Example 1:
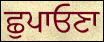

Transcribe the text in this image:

ਛੁਪਾਓਣਾ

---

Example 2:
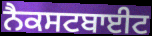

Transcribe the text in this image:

ਨੈਕਸਟਬਾਈਟ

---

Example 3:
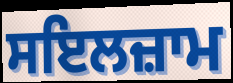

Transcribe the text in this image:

ਸਇਲਜ਼ਾਮ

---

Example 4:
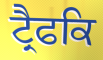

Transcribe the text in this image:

ਟ੍ਰੈਫਕਿ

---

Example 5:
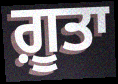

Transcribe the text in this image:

ਗ਼ੂਤਾ